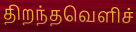
திறந்தவெளிச்